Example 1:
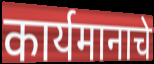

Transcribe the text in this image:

कार्यमानाचे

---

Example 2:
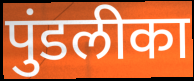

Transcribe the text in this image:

पुंडलीका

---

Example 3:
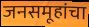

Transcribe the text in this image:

जनसमूहांचा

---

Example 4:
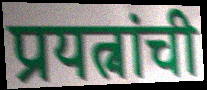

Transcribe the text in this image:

प्रयत्नांची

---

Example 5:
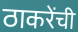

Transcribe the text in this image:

ठाकरेंची